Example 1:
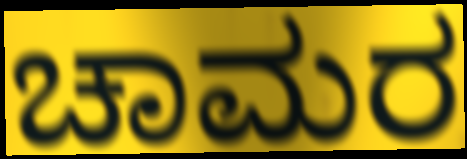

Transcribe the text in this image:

ಚಾಮರ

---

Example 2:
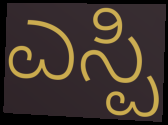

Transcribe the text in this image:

ಎಸ್ಪಿ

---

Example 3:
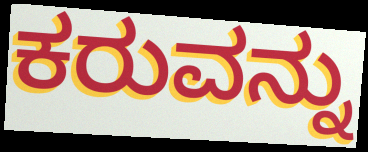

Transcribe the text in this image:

ಕರುವನ್ನು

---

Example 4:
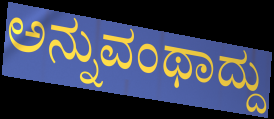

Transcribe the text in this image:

ಅನ್ನುವಂಥಾದ್ದು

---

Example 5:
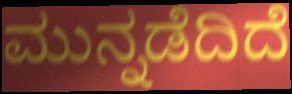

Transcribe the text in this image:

ಮುನ್ನಡೆದಿದೆ